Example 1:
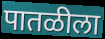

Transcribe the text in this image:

पातळीला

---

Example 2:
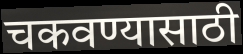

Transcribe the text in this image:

चकवण्यासाठी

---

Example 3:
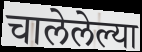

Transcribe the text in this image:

चालेलेल्या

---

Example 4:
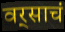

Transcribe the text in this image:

वर्साचं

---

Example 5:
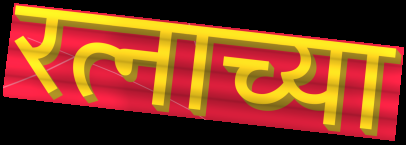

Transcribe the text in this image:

रत्नाच्या